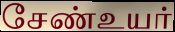
சேண்உயர்